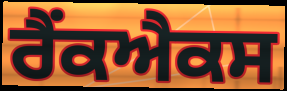
ਰੈਂਕਐਕਸ